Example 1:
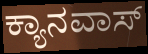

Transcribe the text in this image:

ಕ್ಯಾನವಾಸ್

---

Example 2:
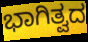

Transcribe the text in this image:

ಭಾಗಿತ್ವದ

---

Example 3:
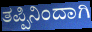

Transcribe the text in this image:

ತಪ್ಪಿನಿಂದಾಗಿ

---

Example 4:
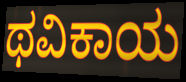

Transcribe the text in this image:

ಥವಿಕಾಯ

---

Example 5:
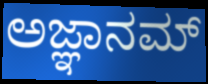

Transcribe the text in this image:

ಅಜ್ಞಾನಮ್